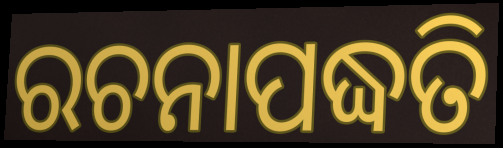
ରଚନାପଦ୍ଧତି